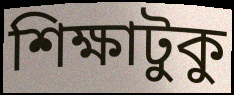
শিক্ষাটুকু